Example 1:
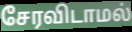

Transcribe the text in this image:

சேரவிடாமல்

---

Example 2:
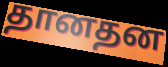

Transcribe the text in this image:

தானதன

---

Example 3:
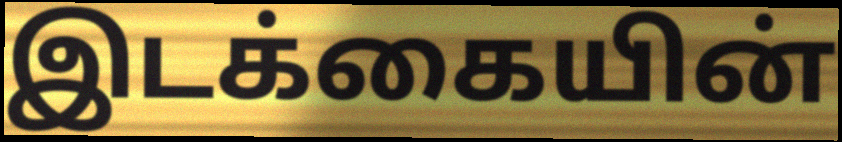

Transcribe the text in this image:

இடக்கையின்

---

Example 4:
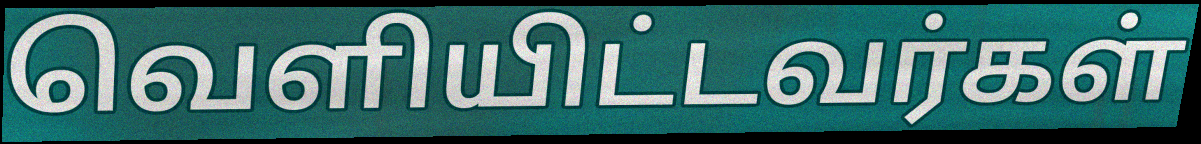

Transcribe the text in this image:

வெளியிட்டவர்கள்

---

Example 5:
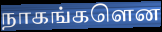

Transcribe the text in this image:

நாகங்களென